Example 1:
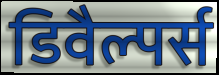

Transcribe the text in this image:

डिवैल्पर्स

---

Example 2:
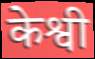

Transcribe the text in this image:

केश्वी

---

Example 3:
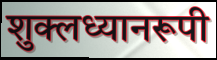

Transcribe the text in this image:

शुक्लध्यानरूपी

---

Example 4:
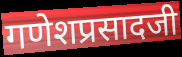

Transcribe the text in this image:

गणेशप्रसादजी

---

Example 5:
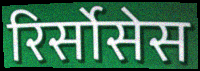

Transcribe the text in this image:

रिर्सोसेस